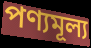
পণ্যমূল্য